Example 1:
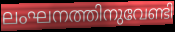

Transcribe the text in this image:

ലംഘനത്തിനുവേണ്ടി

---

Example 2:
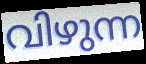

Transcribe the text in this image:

വിഴുന്ന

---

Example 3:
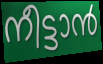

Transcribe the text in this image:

നീട്ടാൻ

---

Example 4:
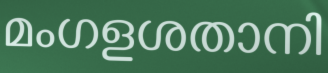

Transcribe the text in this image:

മംഗളശതാനി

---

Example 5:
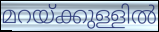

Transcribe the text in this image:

മറയ്ക്കുള്ളിൽ